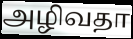
அழிவதா